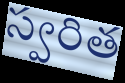
స్వరిత